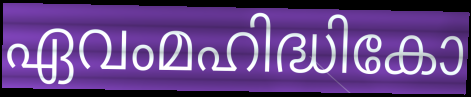
ഏവംമഹിദ്ധികോ